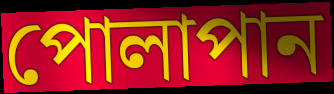
পোলাপান